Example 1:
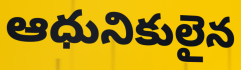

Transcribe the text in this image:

ఆధునికులైన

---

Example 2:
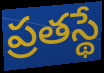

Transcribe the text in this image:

ప్రతస్థే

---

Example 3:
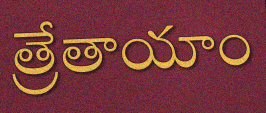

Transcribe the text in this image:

త్రేతాయాం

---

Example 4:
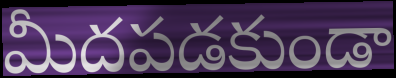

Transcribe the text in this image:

మీదపడకుండా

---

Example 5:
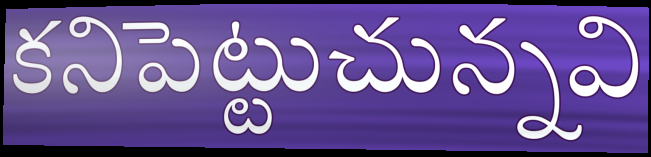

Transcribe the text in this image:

కనిపెట్టుచున్నవి